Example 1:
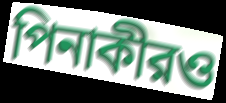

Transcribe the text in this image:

পিনাকীরও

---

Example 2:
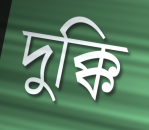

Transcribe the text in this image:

দুক্কি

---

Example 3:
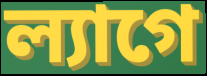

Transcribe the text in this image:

ল্যাগে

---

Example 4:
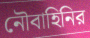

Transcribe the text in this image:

নৌবাহিনির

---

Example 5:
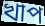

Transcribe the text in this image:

খাপ